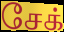
சேக்